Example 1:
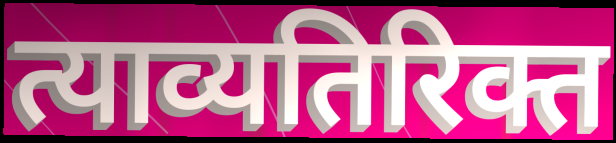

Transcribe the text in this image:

त्याव्यतिरिक्त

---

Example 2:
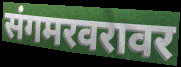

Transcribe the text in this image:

संगमरवरावर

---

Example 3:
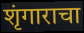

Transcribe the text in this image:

शृंगाराचा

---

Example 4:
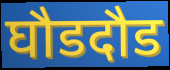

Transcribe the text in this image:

घौडदौड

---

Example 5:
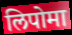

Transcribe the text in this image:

लिपोमा